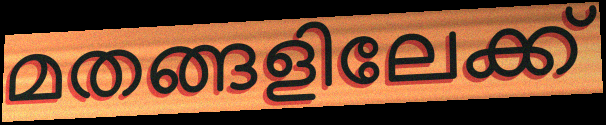
മതങ്ങളിലേക്ക്